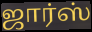
ஜார்ஸ்